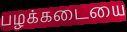
பழக்கடையை